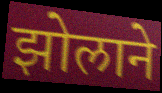
झोलाने